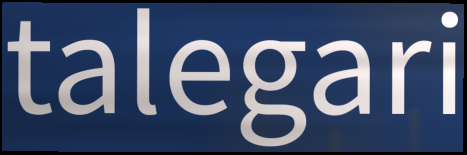
talegari